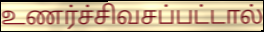
உணர்ச்சிவசப்பட்டால்